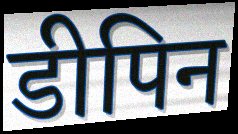
डीपिन